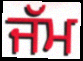
ਜੱਮ